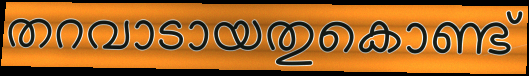
തറവാടായതുകൊണ്ട്